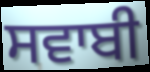
ਸਵਾਬੀ